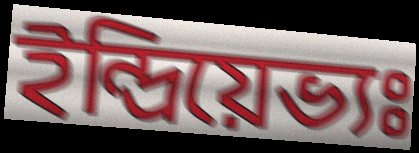
ইন্দ্রিয়েভ্যঃ